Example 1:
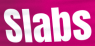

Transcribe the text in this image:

Slabs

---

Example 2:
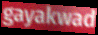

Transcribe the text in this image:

gayakwad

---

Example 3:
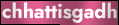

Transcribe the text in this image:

chhattisgadh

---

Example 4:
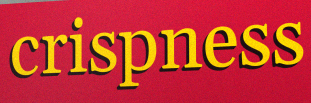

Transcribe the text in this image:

crispness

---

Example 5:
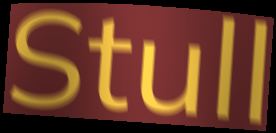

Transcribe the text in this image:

Stull